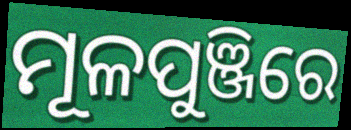
ମୂଳପୁଞ୍ଜିରେ